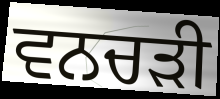
ਵਨਚੜੀ